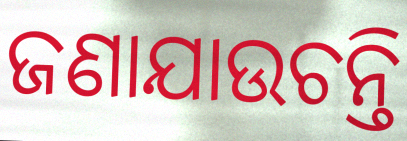
ଜଣାଯାଉଚନ୍ତି